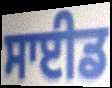
ਸਾਈਡ